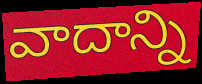
వాదాన్ని